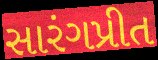
સારંગપ્રીત